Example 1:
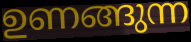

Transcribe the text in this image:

ഉണങ്ങുന്ന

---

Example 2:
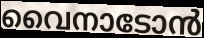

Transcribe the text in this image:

വൈനാടോൻ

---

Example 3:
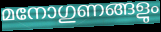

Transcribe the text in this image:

മനോഗുണങ്ങളും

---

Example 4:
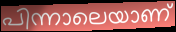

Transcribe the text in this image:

പിന്നാലെയാണ്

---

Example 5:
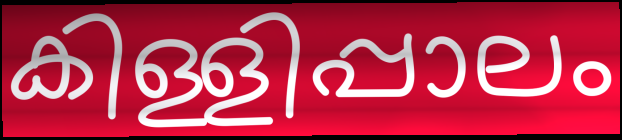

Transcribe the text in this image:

കിള്ളിപ്പാലം